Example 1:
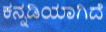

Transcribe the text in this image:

ಕನ್ನಡಿಯಾಗಿದೆ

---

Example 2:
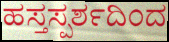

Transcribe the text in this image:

ಹಸ್ತಸ್ಪರ್ಶದಿಂದ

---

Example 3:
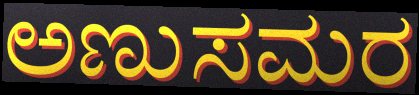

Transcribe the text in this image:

ಅಣುಸಮರ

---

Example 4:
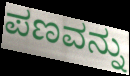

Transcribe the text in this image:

ಪಣವನ್ನು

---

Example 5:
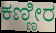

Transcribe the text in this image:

ಕಣ್ಣೀರ